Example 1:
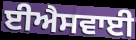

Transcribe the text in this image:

ਈਐਸਵਾਈ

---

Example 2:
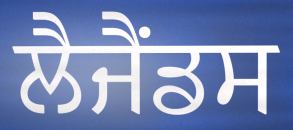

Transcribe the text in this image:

ਲੈਜੈਂਡਸ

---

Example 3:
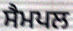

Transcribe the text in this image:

ਸੈਮਪਲ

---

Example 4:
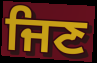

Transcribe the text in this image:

ਜਿਣ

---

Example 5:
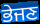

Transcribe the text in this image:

ਭੇਜਣ